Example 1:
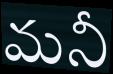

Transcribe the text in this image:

మనీ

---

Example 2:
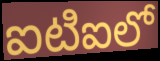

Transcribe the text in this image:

ఐటిఐలో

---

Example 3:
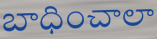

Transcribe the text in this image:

బాధించాలా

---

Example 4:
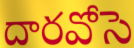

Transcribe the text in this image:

దారవోసె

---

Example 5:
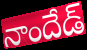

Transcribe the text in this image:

నాందేడ్